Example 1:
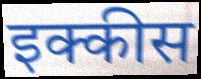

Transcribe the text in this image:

इक्‍कीस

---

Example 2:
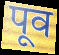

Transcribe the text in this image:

पूव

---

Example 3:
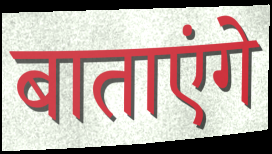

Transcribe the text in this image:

बाताएंगे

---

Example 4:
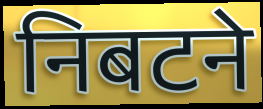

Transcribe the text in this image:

निबटने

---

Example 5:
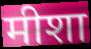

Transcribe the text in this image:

मीशा